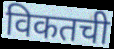
विकतची